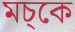
মচ্কে